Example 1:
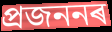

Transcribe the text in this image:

প্ৰজননৰ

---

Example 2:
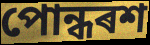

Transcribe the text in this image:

পোন্ধৰশ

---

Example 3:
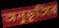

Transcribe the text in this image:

অনুভূতিৰে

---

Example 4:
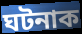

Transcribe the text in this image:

ঘটনাক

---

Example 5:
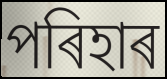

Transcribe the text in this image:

পৰিহাৰ